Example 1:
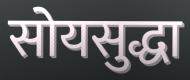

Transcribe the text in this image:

सोयसुद्धा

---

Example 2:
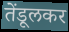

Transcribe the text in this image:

तेंडूलकर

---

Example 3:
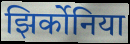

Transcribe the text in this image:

झिर्कोनिया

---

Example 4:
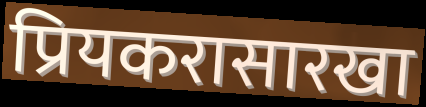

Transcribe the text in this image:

प्रियकरासारखा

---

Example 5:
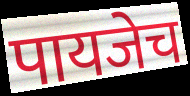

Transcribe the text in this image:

पायजेच